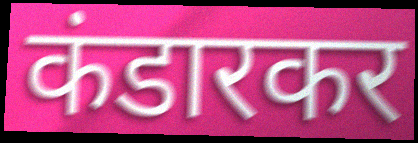
कंडारकर